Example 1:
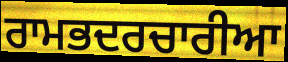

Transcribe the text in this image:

ਰਾਮਭਦਰਚਾਰੀਆ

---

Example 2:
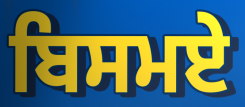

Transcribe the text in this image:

ਬਿਸਮਏ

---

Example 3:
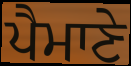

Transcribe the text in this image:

ਪੈਮਾਣੇ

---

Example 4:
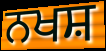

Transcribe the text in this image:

ਨਖਸ਼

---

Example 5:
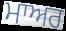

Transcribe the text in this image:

ਮਾਅਰ